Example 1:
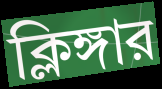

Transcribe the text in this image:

ক্লিঙ্গার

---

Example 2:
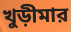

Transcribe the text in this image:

খুড়ীমার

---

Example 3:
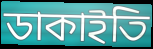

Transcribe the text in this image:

ডাকাইতি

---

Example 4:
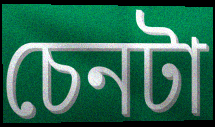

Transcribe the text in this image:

চেনটা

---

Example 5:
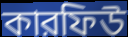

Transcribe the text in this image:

কারফিউ